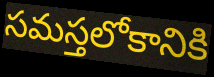
సమస్తలోకానికి